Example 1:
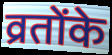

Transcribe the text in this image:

व्रतोंके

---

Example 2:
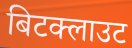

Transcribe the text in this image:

बिटक्लाउट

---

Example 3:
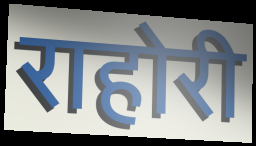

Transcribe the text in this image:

राहोरी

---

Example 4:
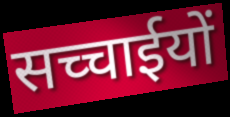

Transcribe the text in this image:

सच्चाईयों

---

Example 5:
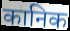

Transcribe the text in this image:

कानिक